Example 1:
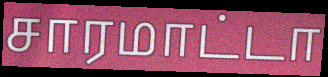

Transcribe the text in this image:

சாரமாட்டா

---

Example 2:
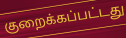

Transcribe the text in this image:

குறைக்கப்பட்டது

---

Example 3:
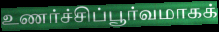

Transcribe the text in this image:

உணர்ச்சிப்பூர்வமாகக்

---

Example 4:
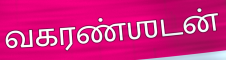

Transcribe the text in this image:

வகரண்ஶடன்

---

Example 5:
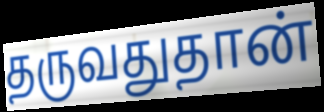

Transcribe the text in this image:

தருவதுதான்